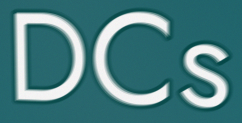
DCs